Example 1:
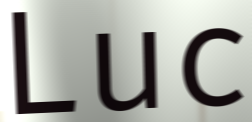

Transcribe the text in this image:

Luc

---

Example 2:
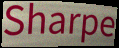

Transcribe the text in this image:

Sharpe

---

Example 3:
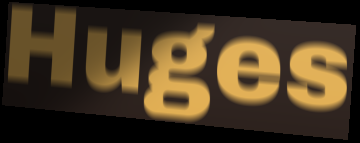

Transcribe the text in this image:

Huges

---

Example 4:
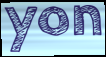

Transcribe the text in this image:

yon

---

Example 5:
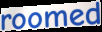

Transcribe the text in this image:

roomed